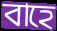
বাহে